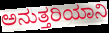
ಅನುತ್ತರಿಯಾನಿ